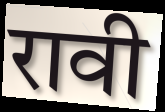
रावी